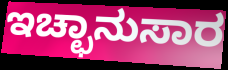
ಇಚ್ಛಾನುಸಾರ